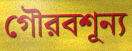
গৌরবশূন্য